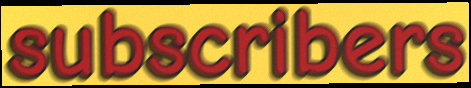
subscribers